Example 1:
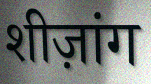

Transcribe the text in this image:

शीज़ांग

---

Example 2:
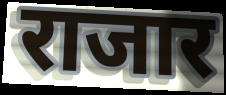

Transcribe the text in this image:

राजार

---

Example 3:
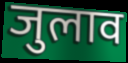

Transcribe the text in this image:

जुलाव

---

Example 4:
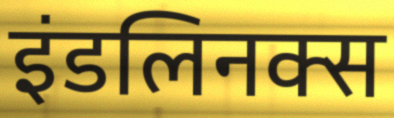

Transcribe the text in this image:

इंडलिनक्स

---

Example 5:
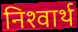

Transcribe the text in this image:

निश्वार्थ